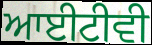
ਆਈਟੀਵੀ